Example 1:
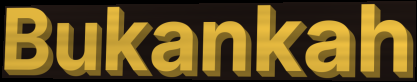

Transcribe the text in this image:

Bukankah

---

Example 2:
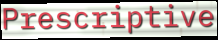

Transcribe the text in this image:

Prescriptive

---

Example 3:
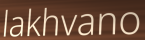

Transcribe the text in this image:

lakhvano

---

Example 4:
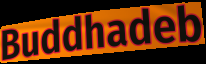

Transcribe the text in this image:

Buddhadeb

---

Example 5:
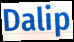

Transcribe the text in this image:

Dalip